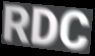
RDC